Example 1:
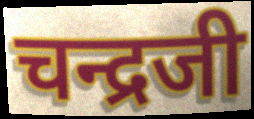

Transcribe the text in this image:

चन्द्रजी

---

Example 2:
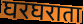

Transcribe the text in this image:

घरघराता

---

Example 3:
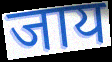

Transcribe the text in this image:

जाय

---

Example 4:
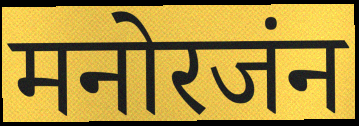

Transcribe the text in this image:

मनोरजंन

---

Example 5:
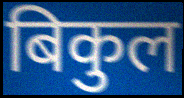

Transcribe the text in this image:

बिकुल